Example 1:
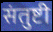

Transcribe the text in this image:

संतुष्टी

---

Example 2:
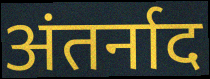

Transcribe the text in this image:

अंतर्नाद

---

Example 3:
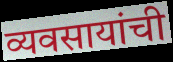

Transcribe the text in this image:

व्यवसायांची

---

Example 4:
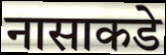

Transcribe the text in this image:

नासाकडे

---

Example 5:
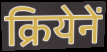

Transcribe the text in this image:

क्रियेनें